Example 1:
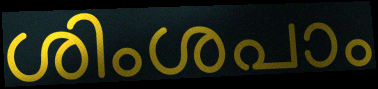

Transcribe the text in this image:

ശിംശപാം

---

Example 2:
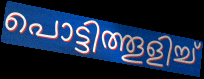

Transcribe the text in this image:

പൊട്ടിത്തൂളിച്ച്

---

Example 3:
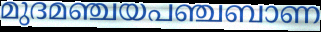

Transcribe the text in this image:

മുദമഞ്ചയപഞ്ചബാണ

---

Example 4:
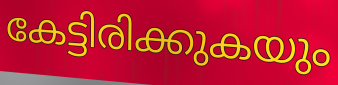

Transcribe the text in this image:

കേട്ടിരിക്കുകയും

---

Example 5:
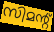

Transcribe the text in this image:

സിമന്റ്